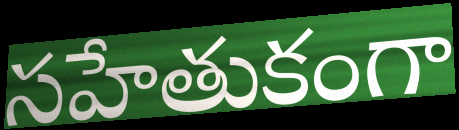
సహేతుకంగా